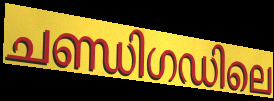
ചണ്ഡിഗഡിലെ